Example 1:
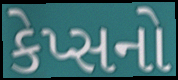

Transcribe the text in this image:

કેપ્સનો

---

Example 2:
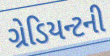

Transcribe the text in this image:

ગ્રેડિયન્ટની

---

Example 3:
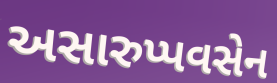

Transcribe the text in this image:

અસારુપ્પવસેન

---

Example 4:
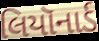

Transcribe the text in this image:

લિયૉનાર્ડ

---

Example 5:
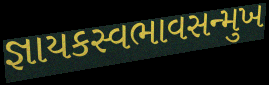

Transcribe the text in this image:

જ્ઞાયકસ્વભાવસન્મુખ